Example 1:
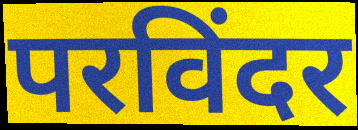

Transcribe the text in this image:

परविंदर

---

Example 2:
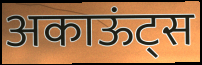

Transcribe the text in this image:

अकाऊंट्स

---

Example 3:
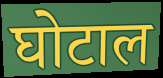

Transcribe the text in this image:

घोटाल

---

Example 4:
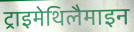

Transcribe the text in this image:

ट्राइमेथिलैमाइन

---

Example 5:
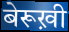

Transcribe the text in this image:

बेरूख़ी